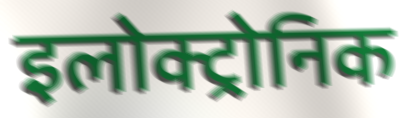
इलोक्ट्रोनिक